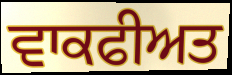
ਵਾਕਫੀਅਤ